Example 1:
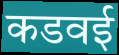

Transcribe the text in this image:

कडवई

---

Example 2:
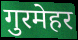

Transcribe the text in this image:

गुरमेहर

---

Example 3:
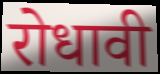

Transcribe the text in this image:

रोधावी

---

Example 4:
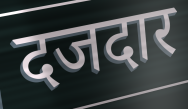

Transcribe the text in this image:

दजदार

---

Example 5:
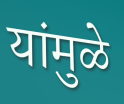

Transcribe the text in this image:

यांमुळे